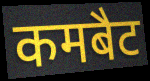
कमबैट